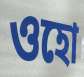
ওহো